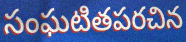
సంఘటితపరచిన